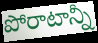
పోరాటాన్నీ